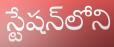
స్టేషన్‌లోని